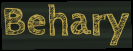
Behary